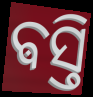
ଵସ୍ତି